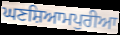
ਘਣਸ਼ਿਆਮਪੁਰੀਆ